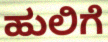
ಹುಲಿಗೆ